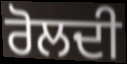
ਰੋਲਦੀ